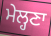
ਮੇਲ੍ਹਣਾ